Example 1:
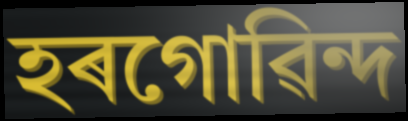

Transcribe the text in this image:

হৰগোৱিন্দ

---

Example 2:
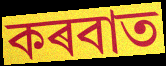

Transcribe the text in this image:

কৰবাত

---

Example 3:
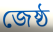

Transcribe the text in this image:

জেষ্ঠ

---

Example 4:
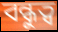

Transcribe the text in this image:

বন্ধুত্ব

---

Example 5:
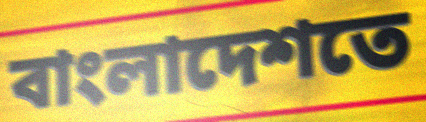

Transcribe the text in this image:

বাংলাদেশতে